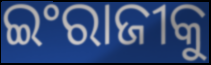
ଇଂରାଜୀକୁ